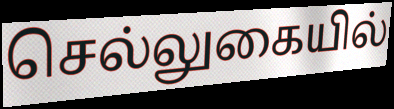
செல்லுகையில்